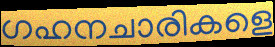
ഗഹനചാരികളെ